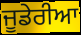
ਜੂਡੇਰੀਆ